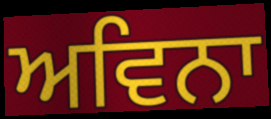
ਅਵਿਨਾ